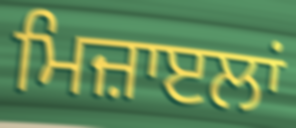
ਮਿਜ਼ਾੲਲਾਂ